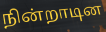
நின்றாடின